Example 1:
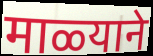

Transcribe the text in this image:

माळ्याने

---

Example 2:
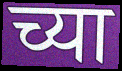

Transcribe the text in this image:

च्या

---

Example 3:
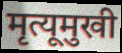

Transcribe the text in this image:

मृत्यूमुखी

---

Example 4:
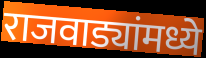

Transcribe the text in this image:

राजवाड्यांमध्ये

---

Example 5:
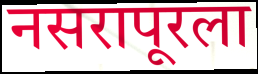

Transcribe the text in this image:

नसरापूरला